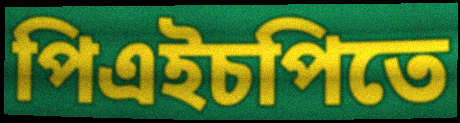
পিএইচপিতে